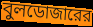
বুলডোজারের